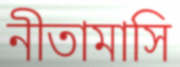
নীতামাসি